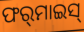
ଫର୍‌ମାଇସ୍